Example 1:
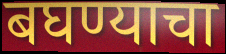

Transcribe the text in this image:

बघण्याचा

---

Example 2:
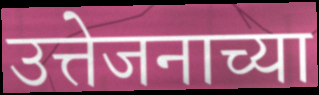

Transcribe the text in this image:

उत्तेजनाच्या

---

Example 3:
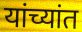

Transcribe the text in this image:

यांच्यांत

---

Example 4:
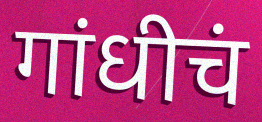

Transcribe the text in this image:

गांधीचं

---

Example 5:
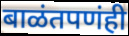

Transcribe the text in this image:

बाळंतपणंही